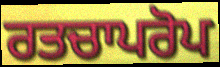
ਰਤਚਾਪਰੋਪ